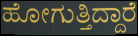
ಹೋಗುತ್ತಿದ್ದಾರೆ